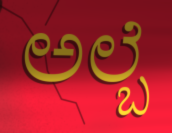
ಅಲ್ಬೆ